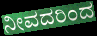
ನೀವದರಿಂದ